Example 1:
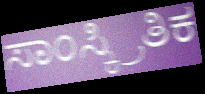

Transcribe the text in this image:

ಸಾಂಸ್ಕ್ರಿತಿಕ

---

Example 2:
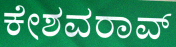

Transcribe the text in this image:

ಕೇಶವರಾವ್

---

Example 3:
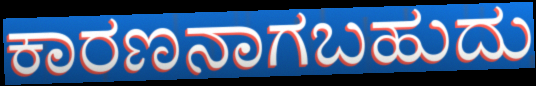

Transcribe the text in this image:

ಕಾರಣನಾಗಬಹುದು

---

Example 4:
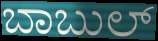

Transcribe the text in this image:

ಬಾಬುಲ್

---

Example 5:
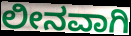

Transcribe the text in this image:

ಲೀನವಾಗಿ